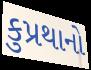
કુપ્રથાનો